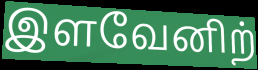
இளவேனிற்